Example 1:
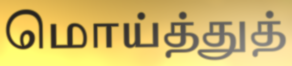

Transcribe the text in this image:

மொய்த்துத்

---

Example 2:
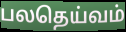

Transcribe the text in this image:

பலதெய்வம்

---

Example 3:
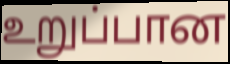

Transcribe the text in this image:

உறுப்பான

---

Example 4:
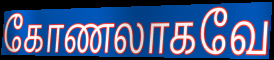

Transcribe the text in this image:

கோணலாகவே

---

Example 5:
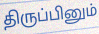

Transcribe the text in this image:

திருப்பினும்